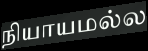
நியாயமல்ல